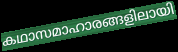
കഥാസമാഹാരങ്ങളിലായി